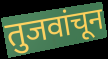
तुजवांचून